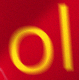
ol